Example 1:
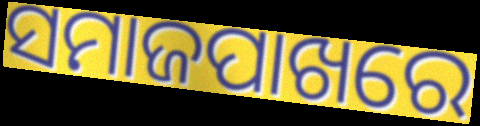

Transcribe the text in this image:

ସମାଜପାଖରେ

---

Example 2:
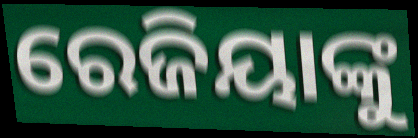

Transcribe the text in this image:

ରେଜିୟାଙ୍କୁ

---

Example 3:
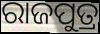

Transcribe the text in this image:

ରାଜପୁତ୍ର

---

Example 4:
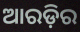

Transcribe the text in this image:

ଆରଡ଼ିର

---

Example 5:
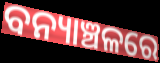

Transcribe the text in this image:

ବନ୍ୟାଞ୍ଚଳରେ